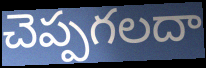
చెప్పగలదా